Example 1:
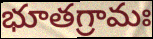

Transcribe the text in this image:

భూతగ్రామః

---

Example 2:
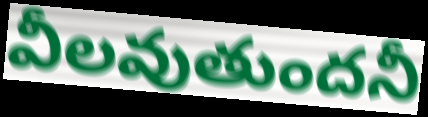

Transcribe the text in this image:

వీలవుతుందనీ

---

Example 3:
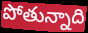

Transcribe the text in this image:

పోతున్నాది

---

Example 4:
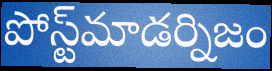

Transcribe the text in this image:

పోస్ట్‌మాడర్నిజం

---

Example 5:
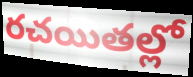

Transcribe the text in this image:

రచయితల్లో